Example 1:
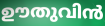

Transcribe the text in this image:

ഊതുവിൻ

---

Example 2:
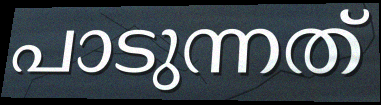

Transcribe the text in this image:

പാടുന്നത്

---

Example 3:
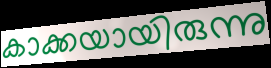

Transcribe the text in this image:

കാക്കയായിരുന്നു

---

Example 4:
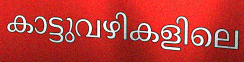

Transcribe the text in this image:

കാട്ടുവഴികളിലെ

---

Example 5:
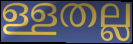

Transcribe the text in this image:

ള്ളതല്ല